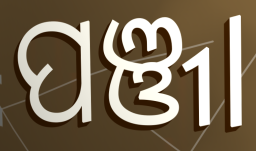
ପଞ୍ଜା